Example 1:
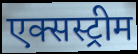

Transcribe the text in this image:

एक्सस्ट्रीम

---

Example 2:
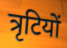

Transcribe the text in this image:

त्रृटियों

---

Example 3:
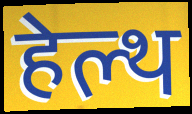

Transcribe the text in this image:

हेल्‍थ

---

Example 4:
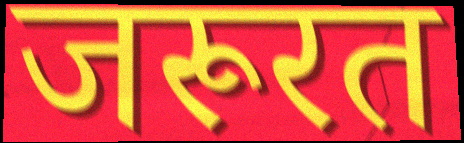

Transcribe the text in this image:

जरूरत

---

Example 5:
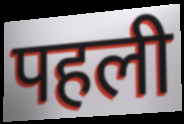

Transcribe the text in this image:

पहली